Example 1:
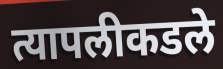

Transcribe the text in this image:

त्यापलीकडले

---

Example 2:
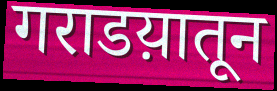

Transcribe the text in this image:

गराडय़ातून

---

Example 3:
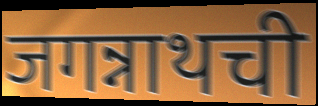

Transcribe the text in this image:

जगन्नाथची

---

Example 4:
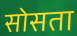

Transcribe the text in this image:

सोसता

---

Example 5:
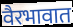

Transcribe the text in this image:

वैरभावात